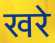
खरे